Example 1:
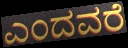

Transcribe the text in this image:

ಎಂದವರೆ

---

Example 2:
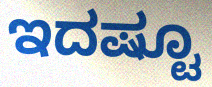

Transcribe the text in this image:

ಇದಷ್ಟೂ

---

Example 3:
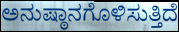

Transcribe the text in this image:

ಅನುಷ್ಠಾನಗೊಳಿಸುತ್ತಿದೆ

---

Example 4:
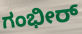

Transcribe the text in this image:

ಗಂಭೀರ್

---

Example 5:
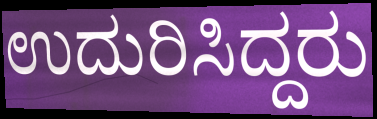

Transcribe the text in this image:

ಉದುರಿಸಿದ್ದರು